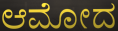
ಆಮೋದ